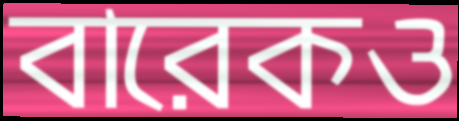
বারেকও